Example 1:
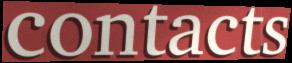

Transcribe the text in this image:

contacts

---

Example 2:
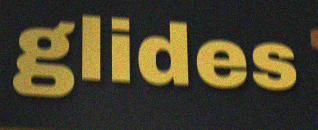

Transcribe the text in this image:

glides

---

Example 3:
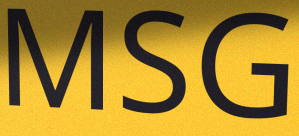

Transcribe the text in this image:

MSG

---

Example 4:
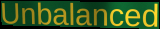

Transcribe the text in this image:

Unbalanced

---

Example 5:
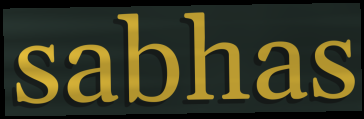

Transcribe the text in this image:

sabhas